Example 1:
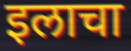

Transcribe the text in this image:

इलाचा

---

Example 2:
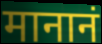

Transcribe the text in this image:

मानानं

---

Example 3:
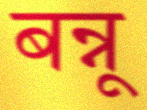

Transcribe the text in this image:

बन्नू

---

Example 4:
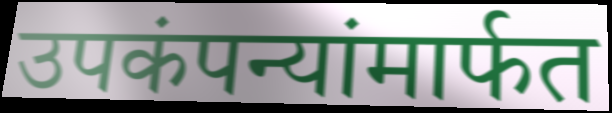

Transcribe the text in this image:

उपकंपन्यांमार्फत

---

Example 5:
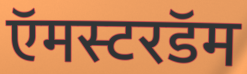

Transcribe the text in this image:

ऍमस्टरडॅम